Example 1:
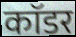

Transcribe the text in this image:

कॉडर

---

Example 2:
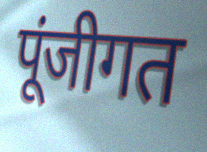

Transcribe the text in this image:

पूंजीगत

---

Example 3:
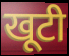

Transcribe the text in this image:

खूटी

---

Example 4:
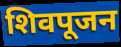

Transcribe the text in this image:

शिवपूजन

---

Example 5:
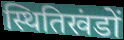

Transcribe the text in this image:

स्थितिखंडों